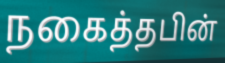
நகைத்தபின்